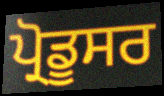
ਪ੍ਰੋਡੂਸਰ